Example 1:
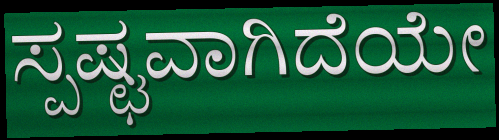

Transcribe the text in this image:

ಸ್ಪಷ್ಟವಾಗಿದೆಯೇ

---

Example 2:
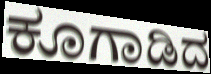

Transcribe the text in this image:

ಕೂಗಾಡಿದ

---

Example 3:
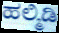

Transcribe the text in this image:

ಹಲ್ಮಿಡಿ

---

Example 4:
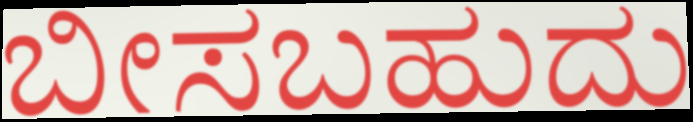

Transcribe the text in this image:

ಬೀಸಬಹುದು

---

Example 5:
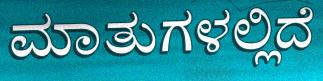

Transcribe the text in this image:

ಮಾತುಗಳಲ್ಲಿದೆ